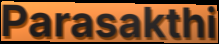
Parasakthi